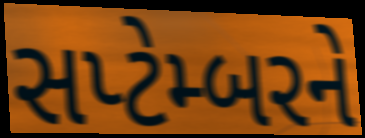
સપ્ટેમ્બરને